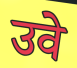
उवे